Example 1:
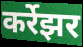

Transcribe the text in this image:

कर्रेझर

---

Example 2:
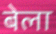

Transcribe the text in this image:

बेला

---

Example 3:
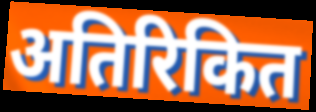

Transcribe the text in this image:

अतिरिकित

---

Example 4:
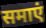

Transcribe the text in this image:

समाएं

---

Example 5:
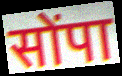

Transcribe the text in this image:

सोंपा